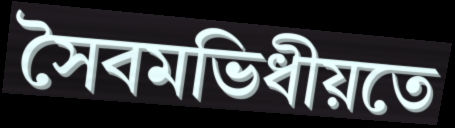
সৈবমভিধীয়তে